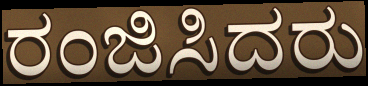
ರಂಜಿಸಿದರು